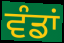
ਵੰਡਾਂ